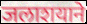
जलाशयाने